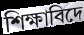
শিক্ষাবিদে